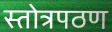
स्तोत्रपठण